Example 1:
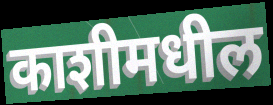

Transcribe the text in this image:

काशीमधील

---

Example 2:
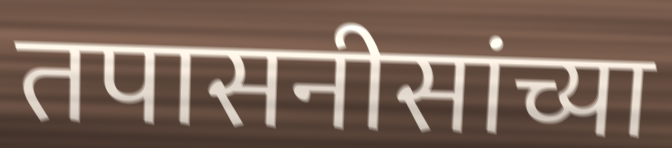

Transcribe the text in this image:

तपासनीसांच्या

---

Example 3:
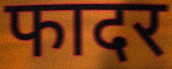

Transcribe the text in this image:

फादर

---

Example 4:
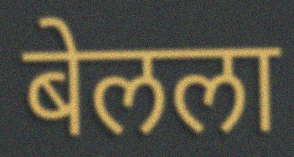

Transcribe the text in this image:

बेलला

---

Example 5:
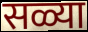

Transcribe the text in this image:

सळ्या